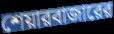
শেয়ারবাজারের